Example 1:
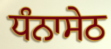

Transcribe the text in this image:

ਧੰਨਾਸੇਠ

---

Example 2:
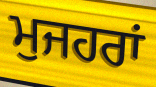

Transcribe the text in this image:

ਮੁਜਹਰਾਂ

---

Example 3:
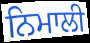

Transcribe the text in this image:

ਨਿਮਾਲੀ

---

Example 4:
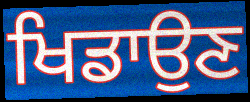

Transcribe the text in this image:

ਖਿਡਾਉਣ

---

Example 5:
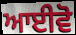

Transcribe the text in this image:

ਆਈਵੋ